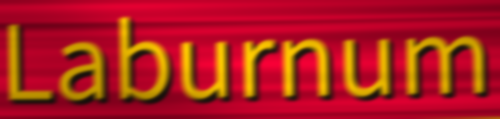
Laburnum